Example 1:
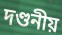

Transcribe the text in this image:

দণ্ডনীয়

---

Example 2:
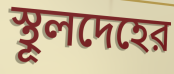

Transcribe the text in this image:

স্থূলদেহের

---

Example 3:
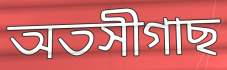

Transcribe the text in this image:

অতসীগাছ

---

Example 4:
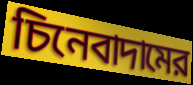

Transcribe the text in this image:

চিনেবাদামের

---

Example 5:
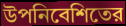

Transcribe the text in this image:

উপনিবেশিতের